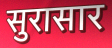
सुरासार